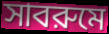
সাবরুমে